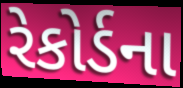
રેકોર્ડના